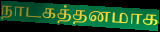
நாடகத்தனமாக